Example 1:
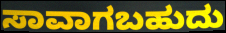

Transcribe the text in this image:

ಸಾವಾಗಬಹುದು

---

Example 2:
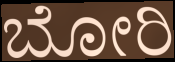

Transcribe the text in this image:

ಬೋರಿ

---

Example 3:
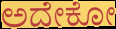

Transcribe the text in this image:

ಅದೇಕೋ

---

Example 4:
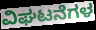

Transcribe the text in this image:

ವಿಘಟನೆಗಳ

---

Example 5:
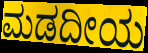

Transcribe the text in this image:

ಮಡದೀಯ